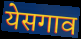
येसगाव